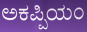
ಅಕಪ್ಪಿಯಂ